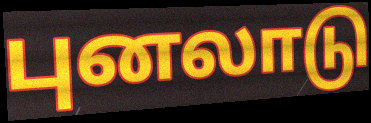
புனலாடு